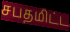
சபதமிட்ட